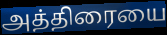
அத்திரையை